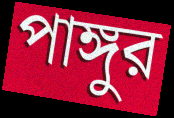
পাঙ্গুর